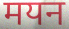
मयन